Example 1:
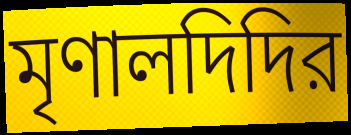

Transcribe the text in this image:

মৃণালদিদির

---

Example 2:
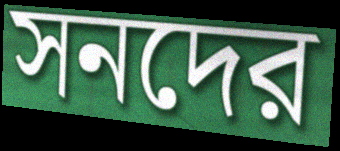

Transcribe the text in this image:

সনদের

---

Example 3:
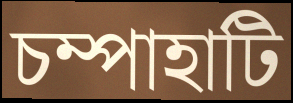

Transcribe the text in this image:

চম্পাহাটি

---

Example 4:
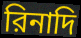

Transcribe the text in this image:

রিনাদি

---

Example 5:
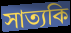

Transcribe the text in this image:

সাত্যকি